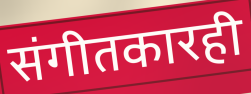
संगीतकारही